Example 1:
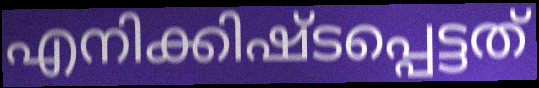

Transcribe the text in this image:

എനിക്കിഷ്ടപ്പെട്ടത്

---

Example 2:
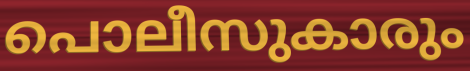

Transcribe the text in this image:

പൊലീസുകാരും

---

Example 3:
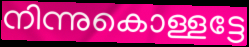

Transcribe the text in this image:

നിന്നുകൊള്ളട്ടേ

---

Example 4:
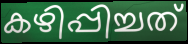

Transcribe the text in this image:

കഴിപ്പിച്ചത്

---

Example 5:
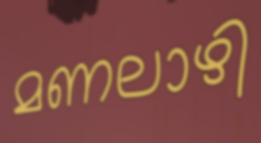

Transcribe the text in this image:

മണലാഴി